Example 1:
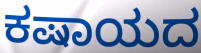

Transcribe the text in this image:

ಕಷಾಯದ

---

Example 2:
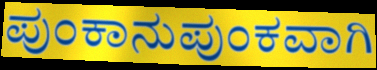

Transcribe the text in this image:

ಪುಂಕಾನುಪುಂಕವಾಗಿ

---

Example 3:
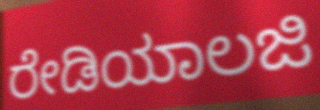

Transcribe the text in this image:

ರೇಡಿಯಾಲಜಿ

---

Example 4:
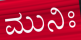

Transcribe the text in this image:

ಮುನಿಃ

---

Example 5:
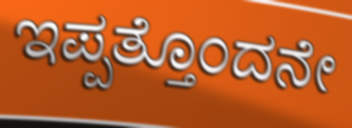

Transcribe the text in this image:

ಇಪ್ಪತ್ತೊಂದನೇ